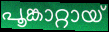
പൂങ്കാറ്റായ്